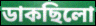
ডাকছিলো